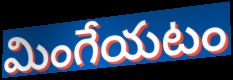
మింగేయటం